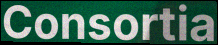
Consortia